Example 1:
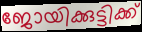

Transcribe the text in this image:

ജോയിക്കുട്ടിക്ക്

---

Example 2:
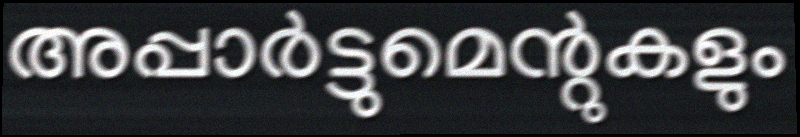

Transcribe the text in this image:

അപ്പാർട്ടുമെന്റുകളും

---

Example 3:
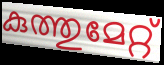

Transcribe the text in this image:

കുത്തുമേറ്റ്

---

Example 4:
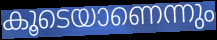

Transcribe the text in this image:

കൂടെയാണെന്നും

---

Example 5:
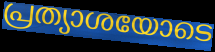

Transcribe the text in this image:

പ്രത്യാശയോടെ